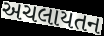
અચલાયતન